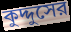
কুদ্দুসের